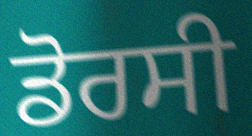
ਡੋਰਸੀ